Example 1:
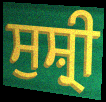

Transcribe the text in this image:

ਸੁਸ਼੍ਰੀ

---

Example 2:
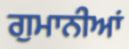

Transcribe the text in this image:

ਗੁਮਾਨੀਆਂ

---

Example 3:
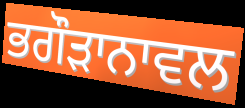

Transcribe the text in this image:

ਭਗੌੜਾਨਾਵਲ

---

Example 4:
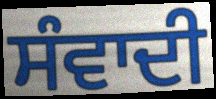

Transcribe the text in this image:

ਸੰਵਾਦੀ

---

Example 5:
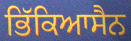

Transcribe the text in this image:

ਭਿੱਕਿਆਸੈਨ